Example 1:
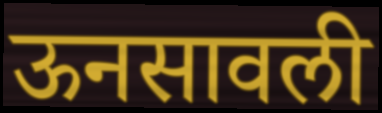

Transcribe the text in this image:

ऊनसावली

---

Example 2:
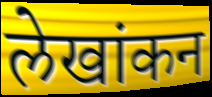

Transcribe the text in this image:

लेखांकन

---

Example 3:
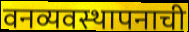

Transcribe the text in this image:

वनव्यवस्थापनाची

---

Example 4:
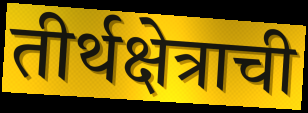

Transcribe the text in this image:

तीर्थक्षेत्राची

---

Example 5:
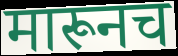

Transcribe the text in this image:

मारूनच